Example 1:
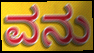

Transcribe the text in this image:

ವನು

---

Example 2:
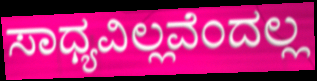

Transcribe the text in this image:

ಸಾಧ್ಯವಿಲ್ಲವೆಂದಲ್ಲ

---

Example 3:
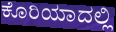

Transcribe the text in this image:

ಕೊರಿಯಾದಲ್ಲಿ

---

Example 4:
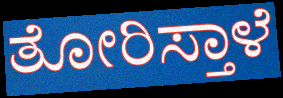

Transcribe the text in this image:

ತೋರಿಸ್ತಾಳೆ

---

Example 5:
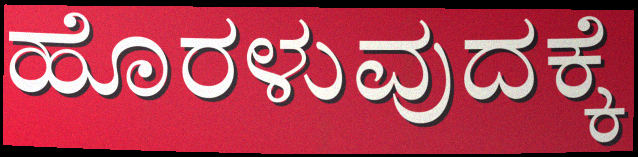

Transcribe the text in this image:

ಹೊರಳುವುದಕ್ಕೆ